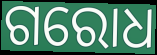
ଗରୋଧ